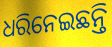
ଧରିନେଇଛନ୍ତି